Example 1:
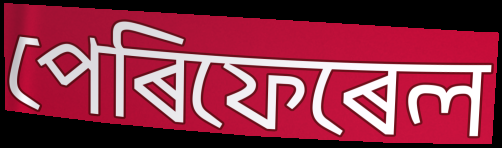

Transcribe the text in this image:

পেৰিফেৰেল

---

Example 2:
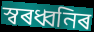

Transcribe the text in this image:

স্বৰধ্বনিৰ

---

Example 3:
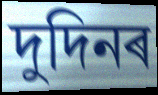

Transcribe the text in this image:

দুদিনৰ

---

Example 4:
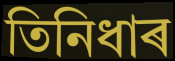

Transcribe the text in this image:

তিনিধাৰ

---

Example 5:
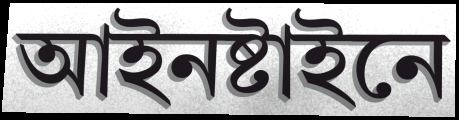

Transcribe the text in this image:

আইনষ্টাইনে